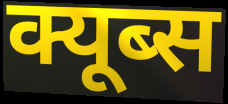
क्यूब्स